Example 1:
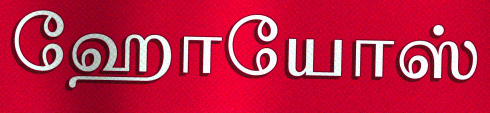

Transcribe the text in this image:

ஹோயோஸ்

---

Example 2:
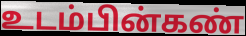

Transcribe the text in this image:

உடம்பின்கண்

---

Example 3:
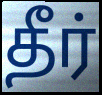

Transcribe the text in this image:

தீர்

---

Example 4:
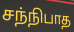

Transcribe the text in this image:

சந்நிபாத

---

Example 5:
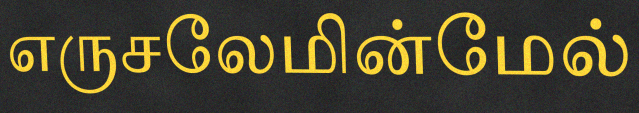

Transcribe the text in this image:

எருசலேமின்மேல்